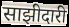
साझीदारी